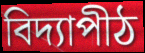
বিদ্যাপীঠ